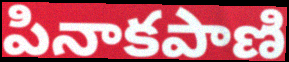
పినాకపాణి